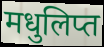
मधुलिप्त